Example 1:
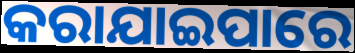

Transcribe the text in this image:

କରାଯାଇପାରେ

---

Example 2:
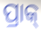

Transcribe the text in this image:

ପ୍ରାକ୍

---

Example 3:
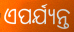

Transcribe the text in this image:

ଏପର୍ଯ୍ୟନ୍ତ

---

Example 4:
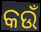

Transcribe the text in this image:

କଉଁ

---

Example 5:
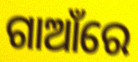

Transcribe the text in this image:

ଗାଆଁରେ